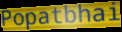
Popatbhai